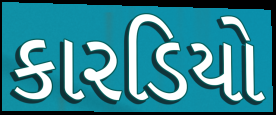
કારડિયો